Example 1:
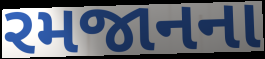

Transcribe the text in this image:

રમજાનના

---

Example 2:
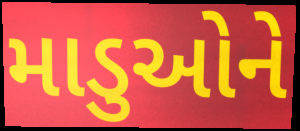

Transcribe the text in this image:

માડુઓને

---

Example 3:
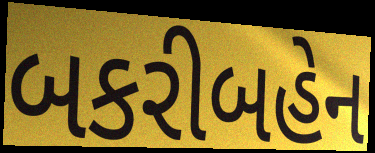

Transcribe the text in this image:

બકરીબહેન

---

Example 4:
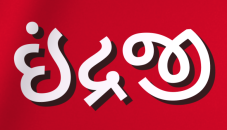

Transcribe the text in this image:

ઇંદ્રજી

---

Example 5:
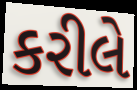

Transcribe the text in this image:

કરીલે